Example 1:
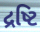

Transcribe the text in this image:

દ્રષ્ટિ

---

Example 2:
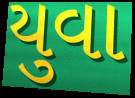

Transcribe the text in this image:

યુવા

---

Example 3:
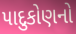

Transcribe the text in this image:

પાદુકોણનો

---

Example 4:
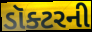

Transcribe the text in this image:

ડૉક્ટરની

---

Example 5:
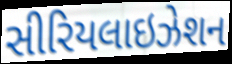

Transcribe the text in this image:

સીરિયલાઇઝેશન